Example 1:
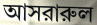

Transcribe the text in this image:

আসরারুল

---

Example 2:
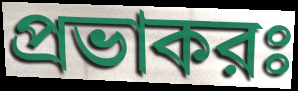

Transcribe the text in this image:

প্রভাকরঃ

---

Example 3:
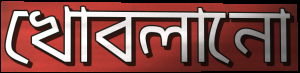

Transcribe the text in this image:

খোবলানো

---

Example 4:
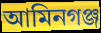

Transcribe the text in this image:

আমিনগঞ্জ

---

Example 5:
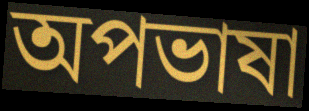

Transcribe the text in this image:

অপভাষা